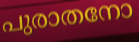
പുരാതനോ